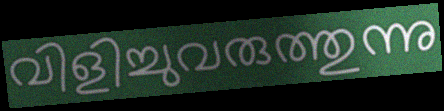
വിളിച്ചുവരുത്തുന്നു